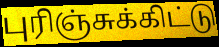
புரிஞ்சுக்கிட்டு